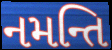
નમન્તિ